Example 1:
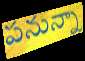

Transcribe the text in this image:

పనున్నా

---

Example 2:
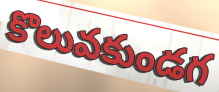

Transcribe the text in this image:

కొలువకుండగ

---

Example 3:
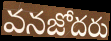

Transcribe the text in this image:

వనజోదరు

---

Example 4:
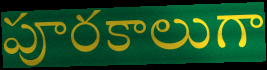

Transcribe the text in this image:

పూరకాలుగా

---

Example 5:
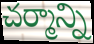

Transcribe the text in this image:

చర్మాన్ని